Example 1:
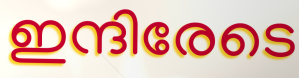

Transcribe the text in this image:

ഇന്ദിരേടെ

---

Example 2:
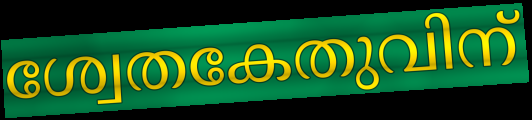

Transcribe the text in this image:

ശ്വേതകേതുവിന്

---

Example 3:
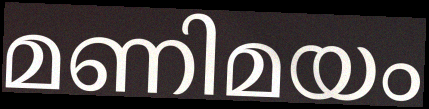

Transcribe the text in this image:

മണിമയം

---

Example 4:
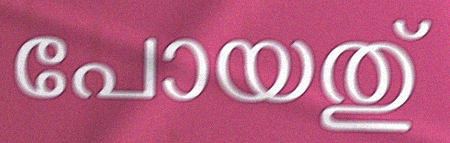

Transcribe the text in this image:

പോയതു്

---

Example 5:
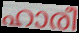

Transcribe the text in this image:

ഹാരീ